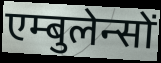
एम्बुलेन्सों